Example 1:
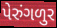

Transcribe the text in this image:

પેરુંગળુર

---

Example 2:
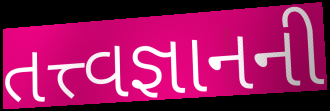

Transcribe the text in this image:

તત્ત્વજ્ઞાનની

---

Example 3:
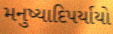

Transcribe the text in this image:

મનુષ્યાદિપર્યાયો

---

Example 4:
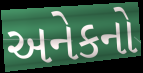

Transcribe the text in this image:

અનેકનો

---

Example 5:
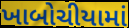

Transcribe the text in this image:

ખાબોચીયામાં